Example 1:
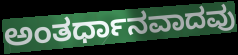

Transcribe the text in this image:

ಅಂತರ್ಧಾನವಾದವು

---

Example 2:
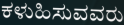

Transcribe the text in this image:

ಕಳುಹಿಸುವವರು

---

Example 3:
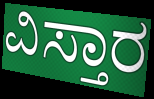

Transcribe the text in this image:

ವಿಸ್ತಾರ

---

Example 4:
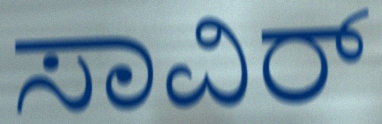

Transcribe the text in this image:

ಸಾವಿರ್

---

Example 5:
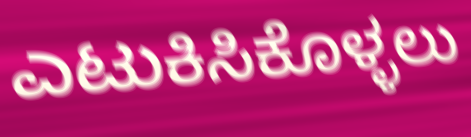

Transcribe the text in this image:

ಎಟುಕಿಸಿಕೊಳ್ಳಲು